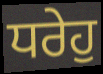
ਧਰੇਹੁ